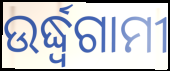
ଉର୍ଦ୍ଧ୍ୱଗାମୀ